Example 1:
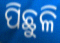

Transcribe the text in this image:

ପିଛୁଳି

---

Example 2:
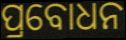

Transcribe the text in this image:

ପ୍ରବୋଧନ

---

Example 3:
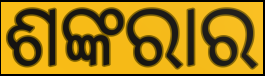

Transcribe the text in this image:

ଶଙ୍କରାର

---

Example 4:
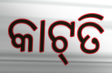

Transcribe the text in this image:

କାଟ୍‍ତି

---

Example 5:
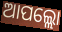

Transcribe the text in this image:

ଆପଲ୍ଲୋ